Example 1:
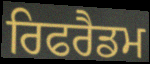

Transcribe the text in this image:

ਰਿਫਰੈਡਮ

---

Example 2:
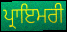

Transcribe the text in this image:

ਪ੍ਰਾਇਮਰੀ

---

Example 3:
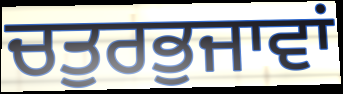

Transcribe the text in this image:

ਚਤੁਰਭੁਜਾਵਾਂ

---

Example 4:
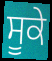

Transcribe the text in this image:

ਸੂਕੇ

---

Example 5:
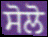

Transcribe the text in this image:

ਸੋਲੋ